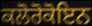
ਕਲੋਰੋਕੋਇਨ